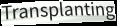
Transplanting